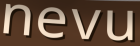
nevu